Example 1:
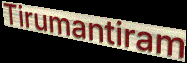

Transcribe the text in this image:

Tirumantiram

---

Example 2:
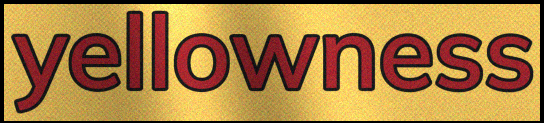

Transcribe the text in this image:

yellowness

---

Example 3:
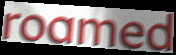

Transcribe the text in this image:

roamed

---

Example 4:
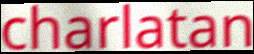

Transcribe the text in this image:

charlatan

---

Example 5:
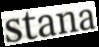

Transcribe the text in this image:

stana